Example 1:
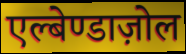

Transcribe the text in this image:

एल्बेण्डाज़ोल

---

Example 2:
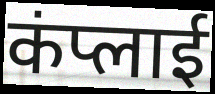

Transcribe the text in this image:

कंप्लाई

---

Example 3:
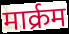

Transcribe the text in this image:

मार्क्रम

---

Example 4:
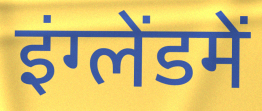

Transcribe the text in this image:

इंग्लेंडमें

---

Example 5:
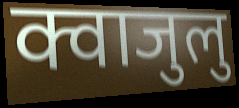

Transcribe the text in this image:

क्वाजुलु